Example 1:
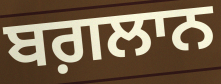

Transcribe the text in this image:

ਬਗ਼ਲਾਨ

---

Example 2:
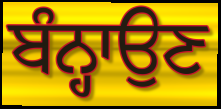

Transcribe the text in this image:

ਬੰਨ੍ਹਾਉਣ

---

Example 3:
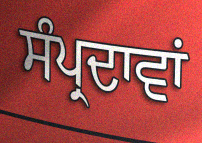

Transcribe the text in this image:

ਸੰਪ੍ਰਦਾਵਾਂ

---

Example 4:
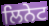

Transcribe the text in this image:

ਲਿਨੇਟ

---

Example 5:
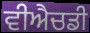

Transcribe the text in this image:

ਵੀਐਚਡੀ